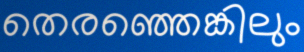
തെരഞ്ഞെങ്കിലും